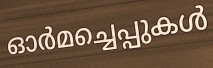
ഓർമച്ചെപ്പുകൾ